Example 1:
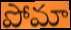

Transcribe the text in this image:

పోమా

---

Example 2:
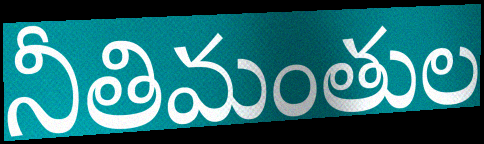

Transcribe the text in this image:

నీతిమంతుల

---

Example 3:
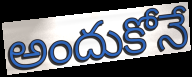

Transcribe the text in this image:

అందుకోనే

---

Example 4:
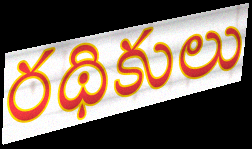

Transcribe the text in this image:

రథికులు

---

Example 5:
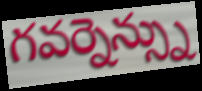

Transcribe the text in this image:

గవర్నెన్స్ను